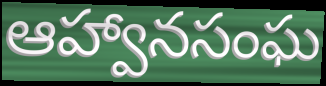
ఆహ్వానసంఘ